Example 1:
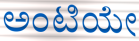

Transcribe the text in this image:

ಅಂಟಿಯೇ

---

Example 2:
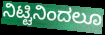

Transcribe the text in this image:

ನಿಟ್ಟಿನಿಂದಲೂ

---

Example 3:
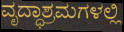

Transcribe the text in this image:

ವೃದ್ಧಾಶ್ರಮಗಳಲ್ಲಿ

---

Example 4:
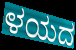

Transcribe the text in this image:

ಳಯದ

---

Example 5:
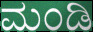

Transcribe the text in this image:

ಮಂಡಿ